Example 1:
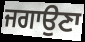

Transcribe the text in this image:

ਜਗਾਉਣਾ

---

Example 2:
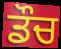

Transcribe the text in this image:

ਡੌਚ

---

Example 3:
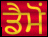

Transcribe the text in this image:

ਡੈਮੋਂ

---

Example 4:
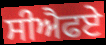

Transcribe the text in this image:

ਸੀਐਫਏ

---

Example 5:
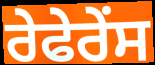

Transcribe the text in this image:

ਰੇਫੇਰੇਂਸ